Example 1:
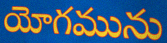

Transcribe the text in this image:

యోగమును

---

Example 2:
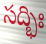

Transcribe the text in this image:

సద్భిః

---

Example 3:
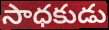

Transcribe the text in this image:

సాధకుడు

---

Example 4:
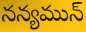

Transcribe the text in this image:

నన్యమున్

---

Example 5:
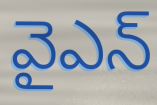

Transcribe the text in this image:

వైఎన్